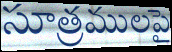
సూత్రములపై